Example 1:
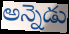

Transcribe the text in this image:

అన్నెడు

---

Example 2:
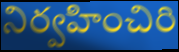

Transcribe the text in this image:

నిర్వహించిరి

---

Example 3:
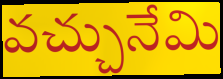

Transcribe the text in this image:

వచ్చునేమి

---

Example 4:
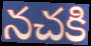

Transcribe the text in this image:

నచకి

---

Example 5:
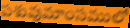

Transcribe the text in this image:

పశువుమాంసములో